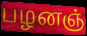
பழனஞ்